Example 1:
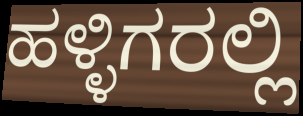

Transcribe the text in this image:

ಹಳ್ಳಿಗರಲ್ಲಿ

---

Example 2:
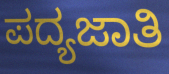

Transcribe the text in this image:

ಪದ್ಯಜಾತಿ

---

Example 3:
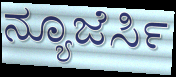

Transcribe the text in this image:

ನ್ಯೂಜೆರ್ಸಿ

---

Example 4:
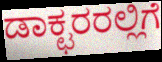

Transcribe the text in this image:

ಡಾಕ್ಟರರಲ್ಲಿಗೆ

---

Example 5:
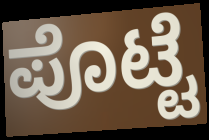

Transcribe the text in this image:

ಪೊಟ್ಟೆ